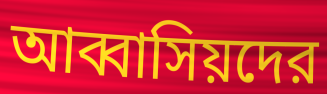
আব্বাসিয়দের